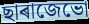
ছাৰাজেভো